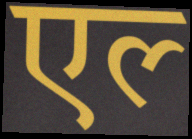
एल्‍